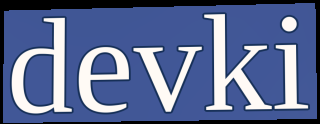
devki